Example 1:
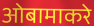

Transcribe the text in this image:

ओबामाकरे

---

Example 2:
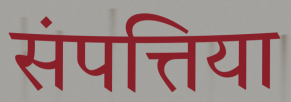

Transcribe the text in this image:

संपत्तिया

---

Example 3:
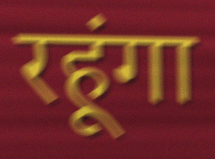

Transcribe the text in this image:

रहूंगा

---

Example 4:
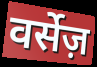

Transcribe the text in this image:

वर्सेज़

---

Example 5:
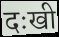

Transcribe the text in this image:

दःखी